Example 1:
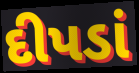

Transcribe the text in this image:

દીપડાં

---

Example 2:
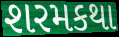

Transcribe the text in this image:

શરમકથા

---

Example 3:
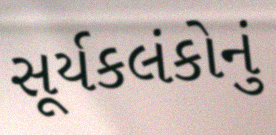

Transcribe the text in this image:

સૂર્યકલંકોનું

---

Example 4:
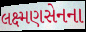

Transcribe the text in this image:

લક્ષ્મણસેનના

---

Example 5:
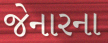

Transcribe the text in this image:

જેનારના